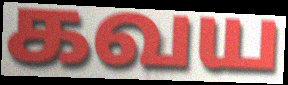
கவய